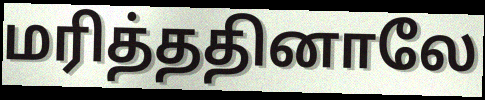
மரித்ததினாலே